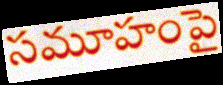
సమూహంపై